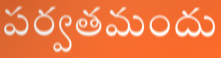
పర్వతమందు